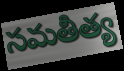
సమతీత్య